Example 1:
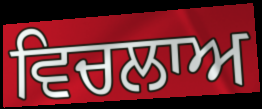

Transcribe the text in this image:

ਵਿਚਲਾਅ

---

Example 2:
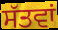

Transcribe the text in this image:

ਸੱਤਵਾਂ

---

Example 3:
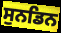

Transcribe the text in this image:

ਸੁਨਡਿਨ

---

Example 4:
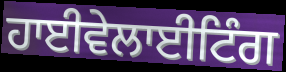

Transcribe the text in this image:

ਹਾਈਵੇਲਾਈਟਿੰਗ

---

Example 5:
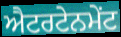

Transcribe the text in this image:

ਐਟਰਟੇਨਮੇਂਟ